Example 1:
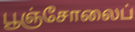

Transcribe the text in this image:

பூஞ்சோலைப்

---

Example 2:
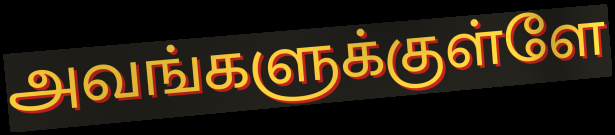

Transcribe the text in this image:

அவங்களுக்குள்ளே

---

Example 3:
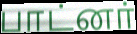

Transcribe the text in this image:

பாட்னர்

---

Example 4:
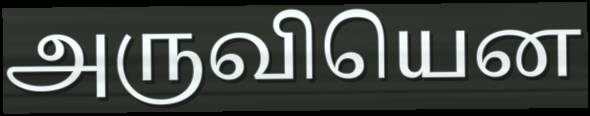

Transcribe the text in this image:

அருவியென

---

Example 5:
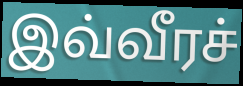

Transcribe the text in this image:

இவ்வீரச்